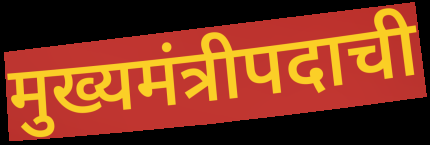
मुख्यमंत्रीपदाची